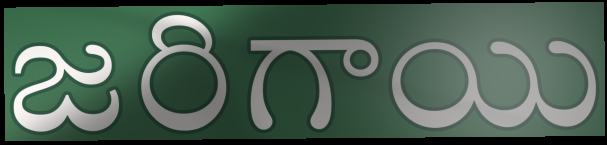
జరిగాయి